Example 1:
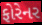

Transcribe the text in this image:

ફોરેનર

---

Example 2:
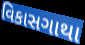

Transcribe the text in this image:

વિકાસગાથા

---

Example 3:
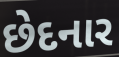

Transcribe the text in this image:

છેદનાર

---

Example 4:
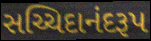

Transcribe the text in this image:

સચ્ચિદાનંદરૂપ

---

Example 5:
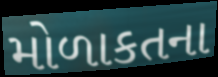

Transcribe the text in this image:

મોળાકતના